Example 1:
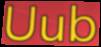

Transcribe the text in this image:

Uub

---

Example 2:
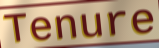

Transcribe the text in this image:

Tenure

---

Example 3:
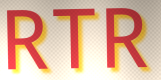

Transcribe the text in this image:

RTR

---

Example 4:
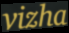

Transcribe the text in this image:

vizha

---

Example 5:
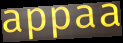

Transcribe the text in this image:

appaa